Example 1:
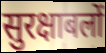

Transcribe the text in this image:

सुरक्षाबलों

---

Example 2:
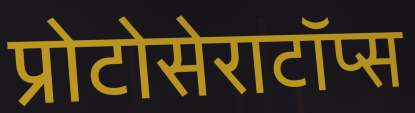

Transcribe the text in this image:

प्रोटोसेराटॉप्स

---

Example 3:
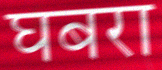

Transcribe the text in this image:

घबरा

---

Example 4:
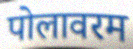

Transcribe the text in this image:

पोलावरम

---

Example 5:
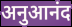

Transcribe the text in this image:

अनुआनंद